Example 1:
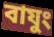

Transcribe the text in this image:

বাযুং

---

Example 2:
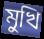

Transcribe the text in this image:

মুখি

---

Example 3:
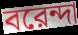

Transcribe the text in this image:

বরেন্দা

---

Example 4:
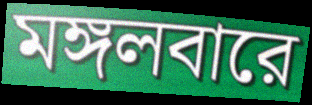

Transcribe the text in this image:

মঙ্গলবারে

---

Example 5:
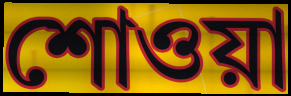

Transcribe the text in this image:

শোওয়া